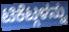
ಟಿಕೆಟ್ಗಳನ್ನು